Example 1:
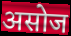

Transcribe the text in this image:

असोज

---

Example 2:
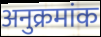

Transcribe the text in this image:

अनुक्रमांक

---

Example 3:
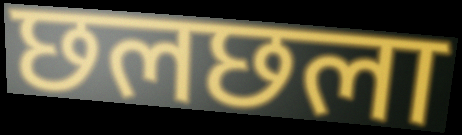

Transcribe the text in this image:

छलछला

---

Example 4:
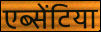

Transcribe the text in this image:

एब्सेंटिया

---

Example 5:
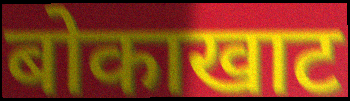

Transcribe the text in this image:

बोकाखाट